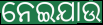
ନେଇଯାଉ